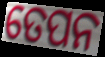
ତେପନ